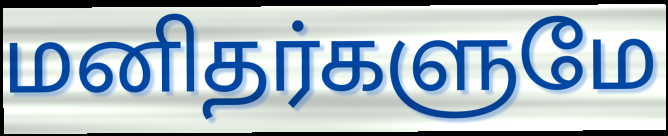
மனிதர்களுமே